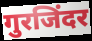
गुरजिंदर